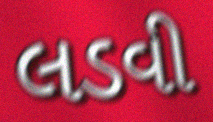
લડવી